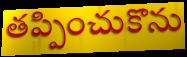
తప్పించుకొను